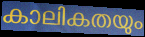
കാലികതയും